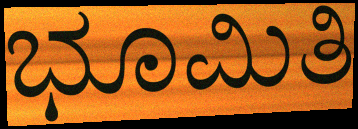
ಭೂಮಿತಿ